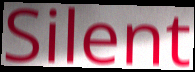
Silent